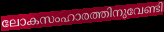
ലോകസംഹാരത്തിനുവേണ്ടി